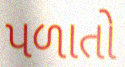
પળાતો